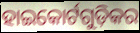
ହାଇକୋର୍ଟଗୁଡ଼ିକର